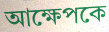
আক্ষেপকে